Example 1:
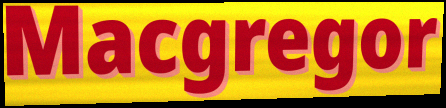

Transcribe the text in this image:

Macgregor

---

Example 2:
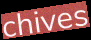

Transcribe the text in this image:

chives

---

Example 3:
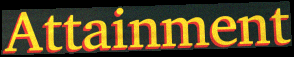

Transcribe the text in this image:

Attainment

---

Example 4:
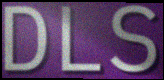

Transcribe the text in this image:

DLS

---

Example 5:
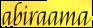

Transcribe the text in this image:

abiraama